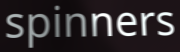
spinners